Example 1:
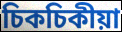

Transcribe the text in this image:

চিকচিকীয়া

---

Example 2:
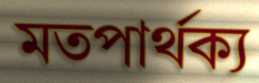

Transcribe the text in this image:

মতপাৰ্থক্য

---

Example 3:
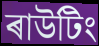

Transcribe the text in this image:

ৰাউটিং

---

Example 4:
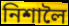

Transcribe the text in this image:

নিশালৈ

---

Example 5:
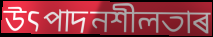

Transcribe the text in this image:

উৎপাদনশীলতাৰ